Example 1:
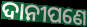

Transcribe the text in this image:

ଦାନୀପଣେ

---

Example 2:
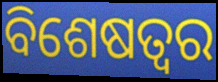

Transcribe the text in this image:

ବିଶେଷତ୍ବର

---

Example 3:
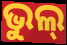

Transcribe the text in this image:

ଭୁଲ୍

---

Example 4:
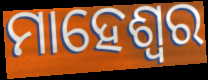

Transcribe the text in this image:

ମାହେଶ୍ଵର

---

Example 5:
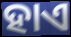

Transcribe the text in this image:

ହାଏ